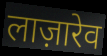
लाज़ारेव